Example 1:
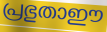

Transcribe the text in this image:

പ്രഭുതാഈ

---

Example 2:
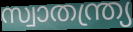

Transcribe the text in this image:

സ്വാതന്ത്ര്യ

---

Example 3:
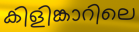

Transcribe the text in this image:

കിളിങ്കാറിലെ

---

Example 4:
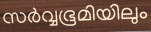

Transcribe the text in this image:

സർവ്വഭൂമിയിലും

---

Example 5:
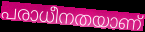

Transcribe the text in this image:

പരാധീനതയാണ്